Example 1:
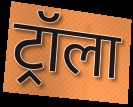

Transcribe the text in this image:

ट्रॉला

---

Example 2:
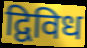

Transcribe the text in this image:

द्विविध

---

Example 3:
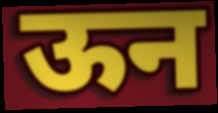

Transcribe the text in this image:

ऊन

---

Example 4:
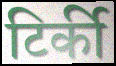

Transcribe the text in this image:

टिर्की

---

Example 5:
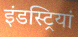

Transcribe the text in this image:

इंडस्ट्रियां